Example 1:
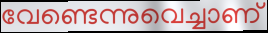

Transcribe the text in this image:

വേണ്ടെന്നുവെച്ചാണ്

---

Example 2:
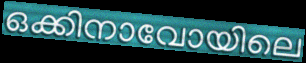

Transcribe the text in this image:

ഒക്കിനാവോയിലെ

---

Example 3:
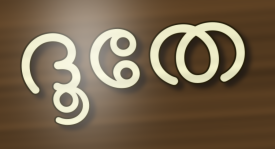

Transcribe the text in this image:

ദൂതേ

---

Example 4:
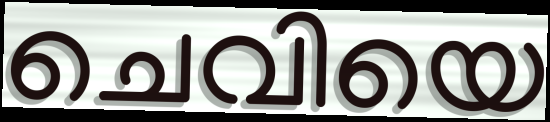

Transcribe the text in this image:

ചെവിയെ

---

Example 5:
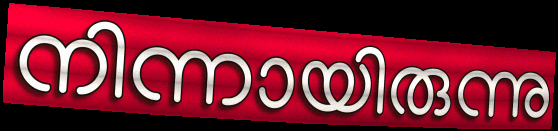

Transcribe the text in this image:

നിന്നായിരുന്നു